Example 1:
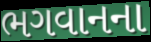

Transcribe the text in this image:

ભગવાનના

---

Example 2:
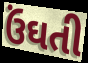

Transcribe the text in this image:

ઉંઘતી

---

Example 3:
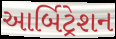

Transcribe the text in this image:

આર્બિટ્રેશન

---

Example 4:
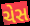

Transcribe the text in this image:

ચેસ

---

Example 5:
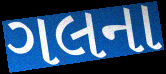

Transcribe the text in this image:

ગલના